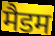
मैडम